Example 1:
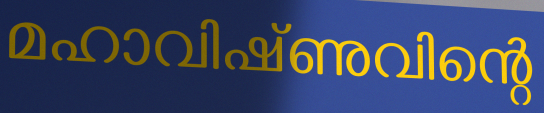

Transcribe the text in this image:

മഹാവിഷ്‌ണുവിന്റെ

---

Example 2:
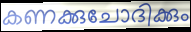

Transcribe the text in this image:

കണക്കുചോദിക്കും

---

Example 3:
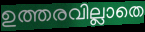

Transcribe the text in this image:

ഉത്തരവില്ലാതെ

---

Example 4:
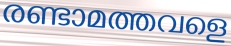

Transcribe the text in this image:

രണ്ടാമത്തവളെ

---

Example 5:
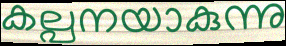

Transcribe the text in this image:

കല്പനയാകുന്നു